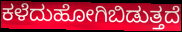
ಕಳೆದುಹೋಗಿಬಿಡುತ್ತದೆ